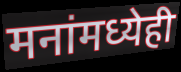
मनांमध्येही